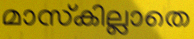
മാസ്‌കില്ലാതെ